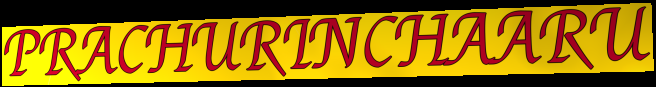
PRACHURINCHAARU